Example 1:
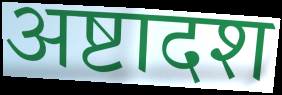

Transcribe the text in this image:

अष्टादश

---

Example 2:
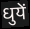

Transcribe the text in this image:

धुयें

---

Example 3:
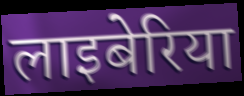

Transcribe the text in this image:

लाइबेरिया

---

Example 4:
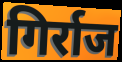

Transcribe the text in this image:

गिर्राज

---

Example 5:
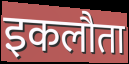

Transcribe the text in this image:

इकलौता